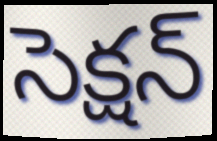
సెక్షన్